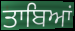
ਤਾਬਿਆਂ